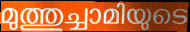
മുത്തുച്ചാമിയുടെ